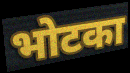
भोटका